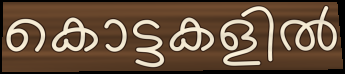
കൊട്ടകളിൽ